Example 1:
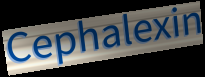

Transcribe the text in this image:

Cephalexin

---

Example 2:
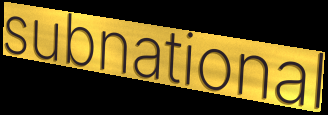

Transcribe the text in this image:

subnational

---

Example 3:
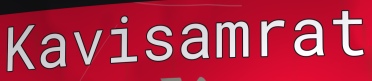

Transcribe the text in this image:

Kavisamrat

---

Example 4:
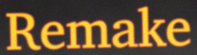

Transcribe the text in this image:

Remake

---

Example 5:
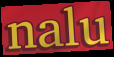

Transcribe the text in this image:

nalu